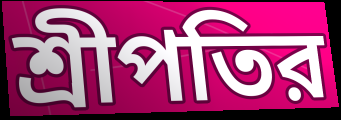
শ্রীপতির